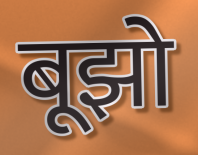
बूझो